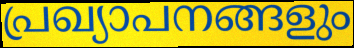
പ്രഖ്യാപനങ്ങളും